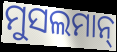
ମୁସଲମାନ୍